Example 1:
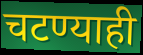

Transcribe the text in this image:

चटण्याही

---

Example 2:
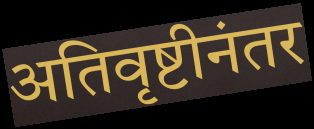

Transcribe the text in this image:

अतिवृष्टीनंतर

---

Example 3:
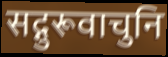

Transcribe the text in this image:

सद्गुरूवाचुनि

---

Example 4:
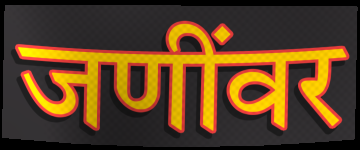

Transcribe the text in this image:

जणींवर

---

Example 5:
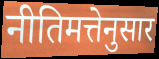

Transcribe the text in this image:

नीतिमत्तेनुसार